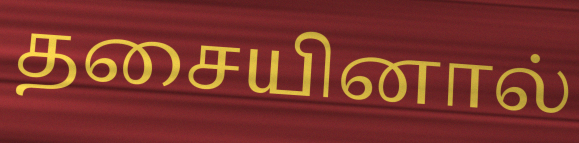
தசையினால்